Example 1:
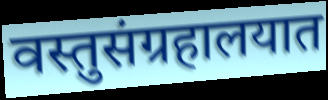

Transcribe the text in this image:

वस्तुसंग्रहालयात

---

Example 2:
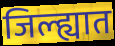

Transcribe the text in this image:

जिल्ह्यात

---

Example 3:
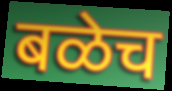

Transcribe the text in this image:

बळेच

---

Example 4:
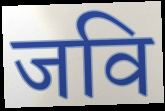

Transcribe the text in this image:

जवि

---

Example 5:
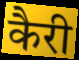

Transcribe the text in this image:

कैरी